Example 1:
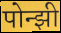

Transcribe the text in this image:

पोन्झी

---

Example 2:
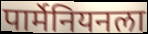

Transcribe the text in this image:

पार्मेनियनला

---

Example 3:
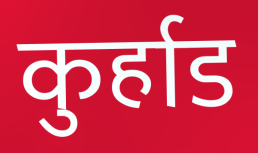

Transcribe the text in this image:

कुर्हाड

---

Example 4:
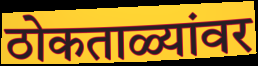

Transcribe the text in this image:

ठोकताळ्यांवर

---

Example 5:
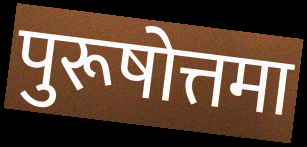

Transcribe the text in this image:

पुरूषोत्तमा